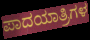
ಪಾದಯಾತ್ರಿಗಳ